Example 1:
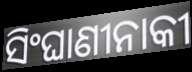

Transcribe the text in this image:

ସିଂଘାଣୀନାକୀ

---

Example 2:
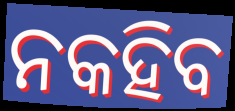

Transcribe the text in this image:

ନକହିବ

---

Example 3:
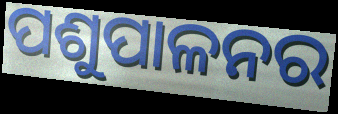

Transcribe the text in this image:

ପଶୁପାଳନର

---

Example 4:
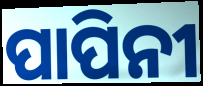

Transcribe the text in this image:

ପାପିନୀ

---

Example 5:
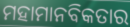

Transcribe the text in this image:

ମହାମାନବିକତାର